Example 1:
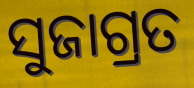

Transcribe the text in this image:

ସୁଜାଗ୍ରତ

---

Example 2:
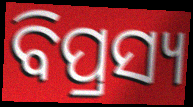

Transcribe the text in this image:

ବିପ୍ରସ୍ୟ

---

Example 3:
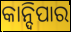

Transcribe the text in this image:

କାନ୍ଦିପାର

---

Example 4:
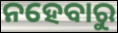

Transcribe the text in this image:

ନହେବାରୁ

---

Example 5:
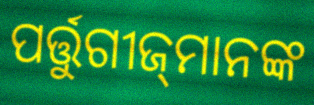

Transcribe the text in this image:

ପର୍ତ୍ତୁଗୀଜ୍‌ମାନଙ୍କ